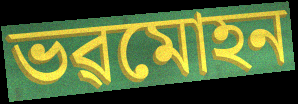
ভৱমোহন